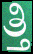
ತ್ತಿ